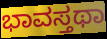
ಭಾವಸ್ತಥಾ